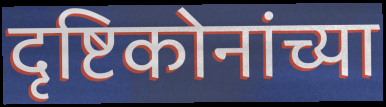
दृष्टिकोनांच्या